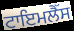
ਟਾਇਮਲੈੱਸ